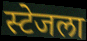
स्टेजला